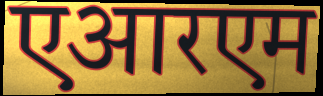
एआरएम